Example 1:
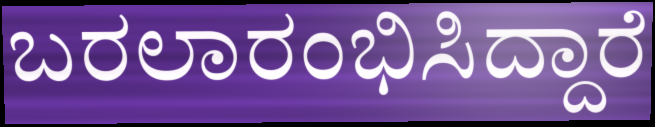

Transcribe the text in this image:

ಬರಲಾರಂಭಿಸಿದ್ದಾರೆ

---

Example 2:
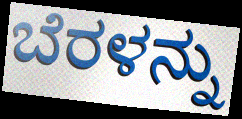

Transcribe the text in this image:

ಬೆರಳನ್ನು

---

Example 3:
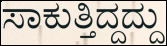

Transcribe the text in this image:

ಸಾಕುತ್ತಿದ್ದದ್ದು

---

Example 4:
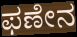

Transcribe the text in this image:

ಫಣೇನ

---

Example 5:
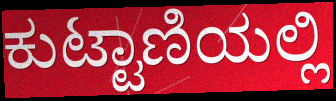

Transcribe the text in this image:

ಕುಟ್ಟಾಣಿಯಲ್ಲಿ